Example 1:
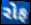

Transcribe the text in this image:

રોફ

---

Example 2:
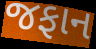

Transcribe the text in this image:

જફાન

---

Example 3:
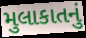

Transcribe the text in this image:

મુલાકાતનું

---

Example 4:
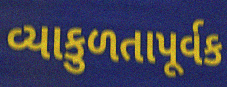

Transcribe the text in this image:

વ્યાકુળતાપૂર્વક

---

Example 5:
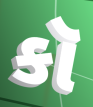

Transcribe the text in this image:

કૉ